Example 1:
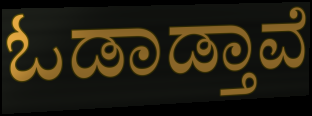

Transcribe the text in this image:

ಓಡಾಡ್ತಾವೆ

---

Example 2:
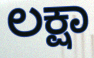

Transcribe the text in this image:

ಲಕ್ಷಾ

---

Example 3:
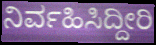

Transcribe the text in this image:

ನಿರ್ವಹಿಸಿದ್ದೀರಿ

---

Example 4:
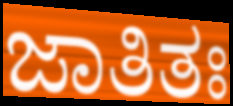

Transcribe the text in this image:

ಜಾತಿತಃ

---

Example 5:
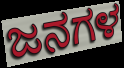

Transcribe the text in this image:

ಜನಗಳ